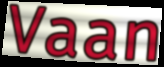
Vaan